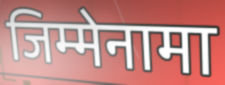
जिम्मेनामा